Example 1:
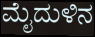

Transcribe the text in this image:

ಮೈದುಳಿನ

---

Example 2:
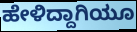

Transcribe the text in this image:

ಹೇಳಿದ್ದಾಗಿಯೂ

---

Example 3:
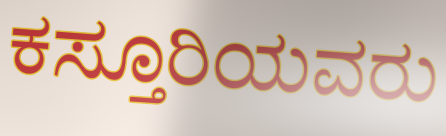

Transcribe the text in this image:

ಕಸ್ತೂರಿಯವರು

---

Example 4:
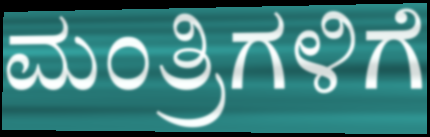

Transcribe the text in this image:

ಮಂತ್ರಿಗಳಿಗೆ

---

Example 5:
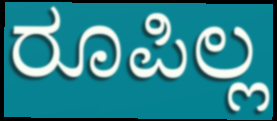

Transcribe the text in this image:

ರೂಪಿಲ್ಲ